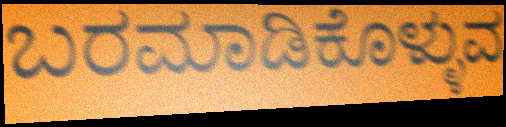
ಬರಮಾಡಿಕೊಳ್ಳುವ